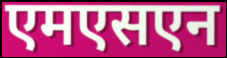
एमएसएन